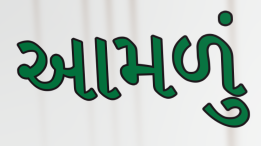
આમળું